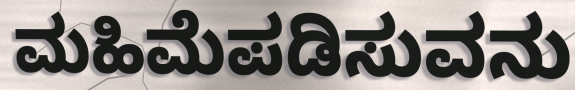
ಮಹಿಮೆಪಡಿಸುವನು